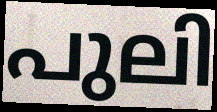
പുലി